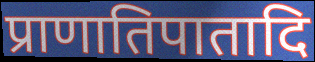
प्राणातिपातादि